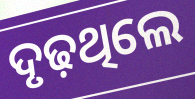
ଦୃଢ଼ଥିଲେ